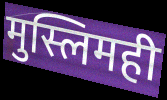
मुस्लिमही